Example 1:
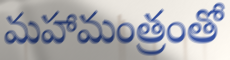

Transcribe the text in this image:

మహామంత్రంతో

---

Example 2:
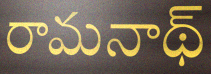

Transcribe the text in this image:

రామనాథ్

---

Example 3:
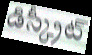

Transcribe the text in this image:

డిస్క్రీట్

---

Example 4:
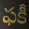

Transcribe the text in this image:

ఫకీ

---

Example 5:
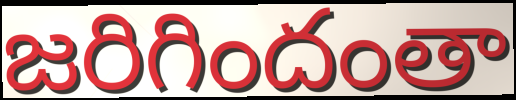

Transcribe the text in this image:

జరిగిందంతా